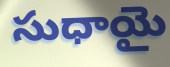
సుధాయై